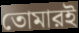
তোমারই